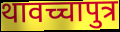
थावच्चापुत्र